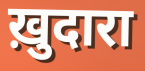
ख़ुदारा